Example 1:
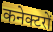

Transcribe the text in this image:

कनेक्टरों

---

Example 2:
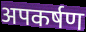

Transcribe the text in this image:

अपकर्षण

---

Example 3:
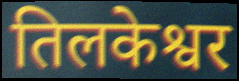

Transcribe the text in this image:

तिलकेश्वर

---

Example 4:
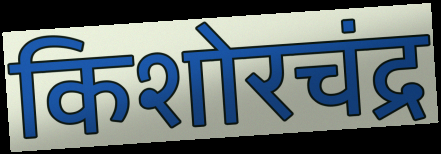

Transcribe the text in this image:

किशोरचंद्र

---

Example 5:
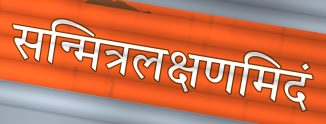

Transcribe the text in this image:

सन्मित्रलक्षणमिदं